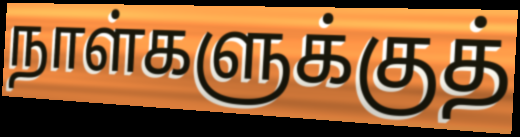
நாள்களுக்குத்